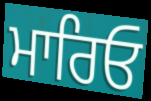
ਮਾਰਿਓ